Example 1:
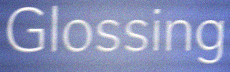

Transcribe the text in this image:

Glossing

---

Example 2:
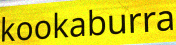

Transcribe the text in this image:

kookaburra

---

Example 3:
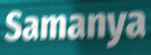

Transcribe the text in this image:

Samanya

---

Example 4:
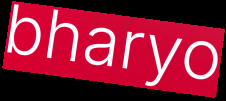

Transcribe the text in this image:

bharyo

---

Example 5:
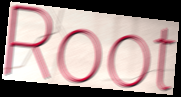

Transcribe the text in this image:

Root